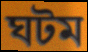
ঘটম